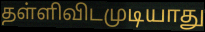
தள்ளிவிடமுடியாது